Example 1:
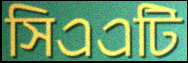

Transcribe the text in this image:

সিএএটি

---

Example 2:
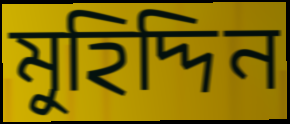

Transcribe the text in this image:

মুহিদ্দিন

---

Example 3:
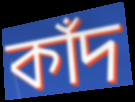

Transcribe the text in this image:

কাঁদ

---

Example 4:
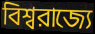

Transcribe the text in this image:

বিশ্বরাজ্যে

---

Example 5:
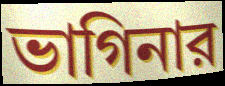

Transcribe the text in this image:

ভাগিনার